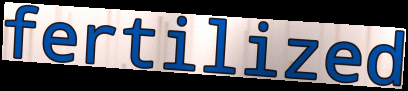
fertilized